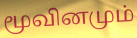
மூவினமும்